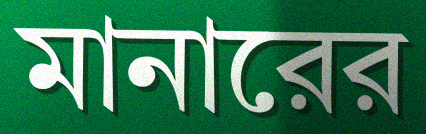
মানারের